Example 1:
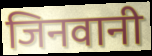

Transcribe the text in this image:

जिनवानी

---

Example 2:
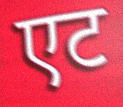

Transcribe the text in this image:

एट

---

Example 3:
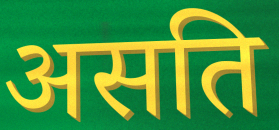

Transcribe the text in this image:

असति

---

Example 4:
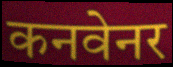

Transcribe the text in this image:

कनवेनर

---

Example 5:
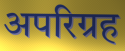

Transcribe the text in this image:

अपरिग्रह